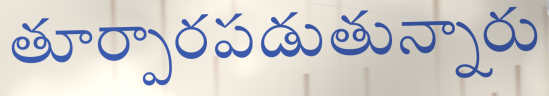
తూర్పారపడుతున్నారు